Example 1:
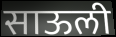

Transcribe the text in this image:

साऊली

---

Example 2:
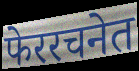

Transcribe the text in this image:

फेररचनेत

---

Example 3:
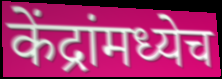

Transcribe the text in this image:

केंद्रांमध्येच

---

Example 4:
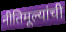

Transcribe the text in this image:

नीतिमूल्यांची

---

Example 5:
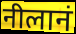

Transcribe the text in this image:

नीलानं